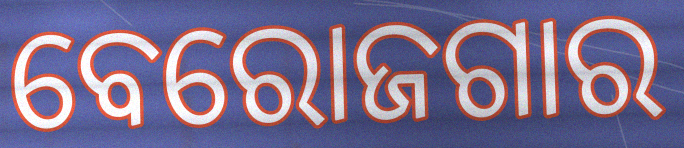
ବେରୋଜଗାର